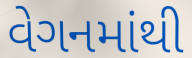
વેગનમાંથી